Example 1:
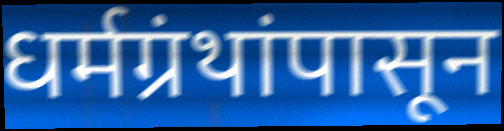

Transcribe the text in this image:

धर्मग्रंथांपासून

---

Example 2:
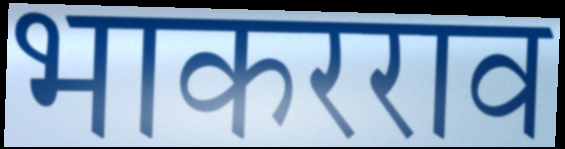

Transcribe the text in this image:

भाकरराव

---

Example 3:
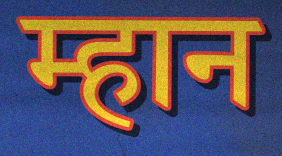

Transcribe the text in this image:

म्हान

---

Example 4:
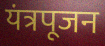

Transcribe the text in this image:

यंत्रपूजन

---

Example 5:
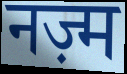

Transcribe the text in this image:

नज़्म